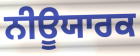
ਨੀਊਯਾਰਕ